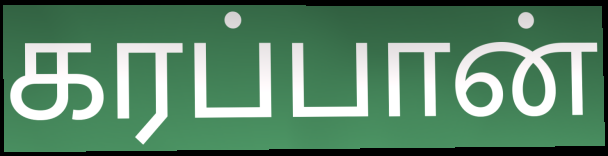
கரப்பான்